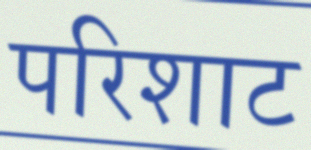
परिशाट